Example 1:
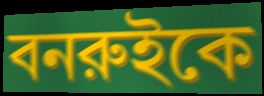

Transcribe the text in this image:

বনরুইকে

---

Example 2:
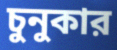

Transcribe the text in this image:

চুনুকার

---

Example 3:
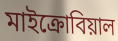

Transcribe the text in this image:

মাইক্রোবিয়াল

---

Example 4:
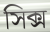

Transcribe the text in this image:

সিক্স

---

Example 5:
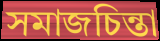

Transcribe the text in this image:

সমাজচিন্তা